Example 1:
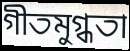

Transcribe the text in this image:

গীতমুগ্ধতা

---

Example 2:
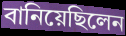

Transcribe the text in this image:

বানিয়েছিলেন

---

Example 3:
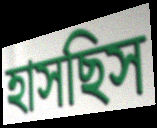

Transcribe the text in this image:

হাসছিস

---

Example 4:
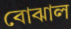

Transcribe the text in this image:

বোঝাল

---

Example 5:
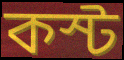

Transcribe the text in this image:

কস্ট